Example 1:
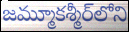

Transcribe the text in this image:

జమ్మూకశ్మీర్‌లోని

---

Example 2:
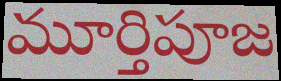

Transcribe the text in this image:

మూర్తిపూజ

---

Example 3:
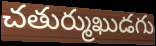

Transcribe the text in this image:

చతుర్ముఖుడగు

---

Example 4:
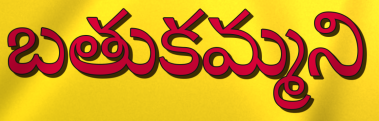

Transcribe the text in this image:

బతుకమ్మని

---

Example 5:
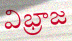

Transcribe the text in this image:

విభ్రాజ